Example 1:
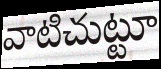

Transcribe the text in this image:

వాటిచుట్టూ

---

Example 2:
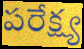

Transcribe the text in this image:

పరేక్ష్య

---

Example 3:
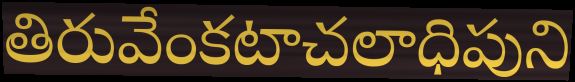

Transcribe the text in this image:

తిరువేంకటాచలాధిపుని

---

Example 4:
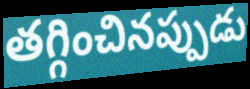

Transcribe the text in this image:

తగ్గించినప్పుడు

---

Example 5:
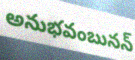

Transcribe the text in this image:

అనుభవంబునన్